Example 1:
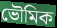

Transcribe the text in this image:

ভৌমিক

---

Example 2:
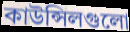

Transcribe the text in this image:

কাউন্সিলগুলো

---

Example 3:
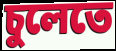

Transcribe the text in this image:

চুলেতে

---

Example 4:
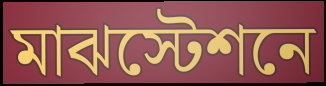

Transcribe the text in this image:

মাঝস্টেশনে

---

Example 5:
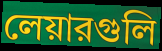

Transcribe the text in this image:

লেয়ারগুলি